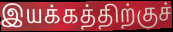
இயக்கத்திற்குச்